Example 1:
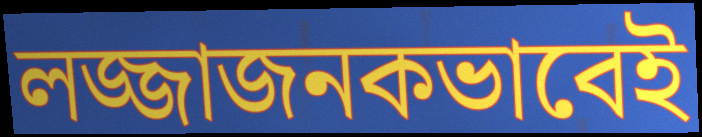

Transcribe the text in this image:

লজ্জাজনকভাবেই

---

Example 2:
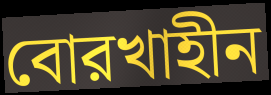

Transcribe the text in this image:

বোরখাহীন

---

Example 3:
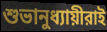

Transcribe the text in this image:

শুভানুধ্যায়ীরাই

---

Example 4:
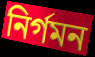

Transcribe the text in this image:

নির্গমন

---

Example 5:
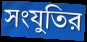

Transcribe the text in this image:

সংযুতির